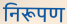
निरूपण